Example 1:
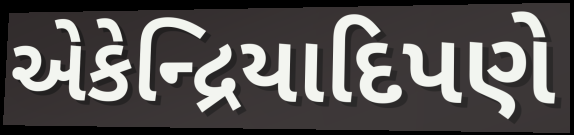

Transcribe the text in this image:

એકેન્દ્રિયાદિપણે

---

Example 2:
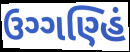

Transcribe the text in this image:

ઉગ્ગણ્હિં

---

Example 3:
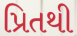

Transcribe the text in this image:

પ્રિતથી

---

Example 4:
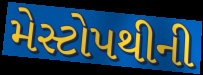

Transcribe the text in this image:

મેસ્ટોપથીની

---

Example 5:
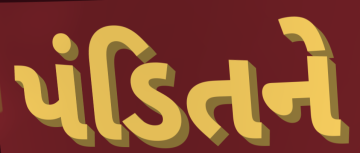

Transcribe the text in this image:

પંડિતને